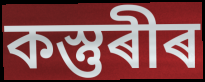
কস্তুৰীৰ